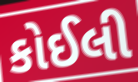
કોઈલી